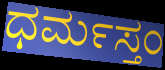
ಧರ್ಮಸ್ತಂ